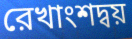
রেখাংশদ্বয়